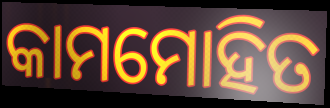
କାମମୋହିତ